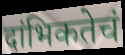
दांभिकतेचं